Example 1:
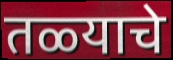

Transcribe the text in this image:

तळ्याचे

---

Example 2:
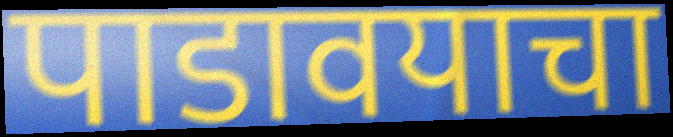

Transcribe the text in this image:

पाडावयाचा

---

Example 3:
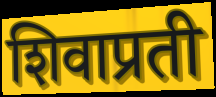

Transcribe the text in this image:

शिवाप्रती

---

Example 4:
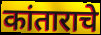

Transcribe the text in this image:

कांताराचे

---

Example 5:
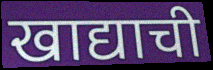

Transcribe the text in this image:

खाद्याची